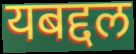
यबद्दल